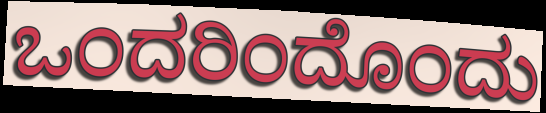
ಒಂದರಿಂದೊಂದು